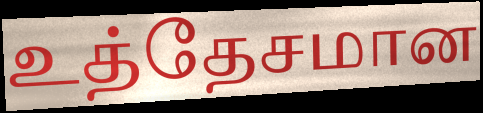
உத்தேசமான